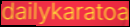
dailykaratoa